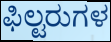
ಫಿಲ್ಟರುಗಳ